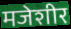
मजेशीर